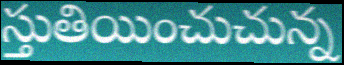
స్తుతియించుచున్న